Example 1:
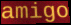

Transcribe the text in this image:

amigo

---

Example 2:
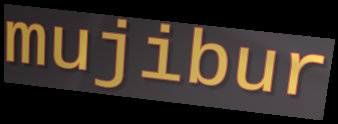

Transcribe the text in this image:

mujibur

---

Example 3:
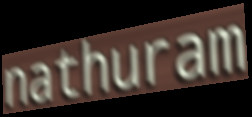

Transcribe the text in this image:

nathuram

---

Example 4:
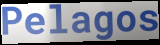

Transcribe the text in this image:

Pelagos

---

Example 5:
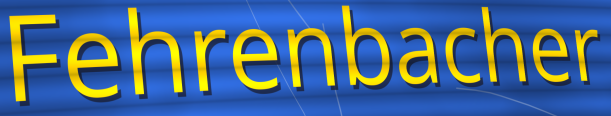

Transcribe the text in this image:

Fehrenbacher